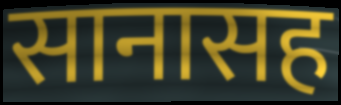
सानासह